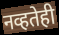
नव्हतेही